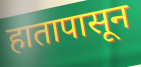
हातापासून